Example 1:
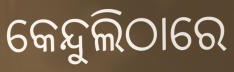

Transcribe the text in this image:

କେନ୍ଦୁଲିଠାରେ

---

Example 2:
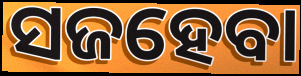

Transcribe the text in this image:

ସଜହେବା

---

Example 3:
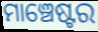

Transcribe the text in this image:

ମାଞ୍ଚେଷ୍ଟର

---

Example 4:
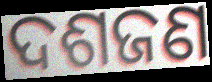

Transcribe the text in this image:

ଦଶଜଣ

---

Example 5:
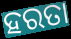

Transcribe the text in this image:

ହରତା